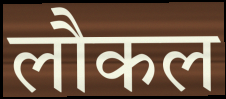
लौकल